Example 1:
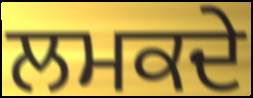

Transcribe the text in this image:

ਲਮਕਦੇ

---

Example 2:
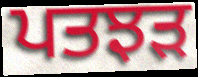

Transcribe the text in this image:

ਪਤਝਡ਼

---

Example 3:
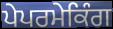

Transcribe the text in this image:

ਪੇਪਰਮੇਕਿੰਗ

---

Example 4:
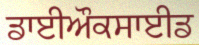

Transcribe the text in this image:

ਡਾਈਔਕਸਾਈਡ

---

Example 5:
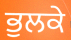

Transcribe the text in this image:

ਭੁਲਕੇ